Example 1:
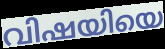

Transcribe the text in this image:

വിഷയിയെ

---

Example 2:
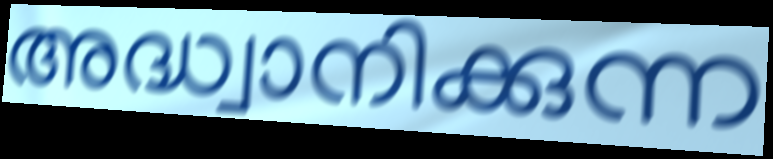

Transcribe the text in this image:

അദ്ധ്വാനിക്കുന്ന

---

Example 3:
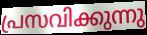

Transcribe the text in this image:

പ്രസവിക്കുന്നു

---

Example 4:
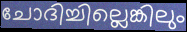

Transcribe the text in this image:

ചോദിച്ചില്ലെങ്കിലും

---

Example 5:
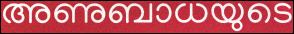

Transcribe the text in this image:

അണുബാധയുടെ